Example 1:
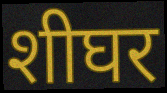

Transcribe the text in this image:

शीघर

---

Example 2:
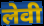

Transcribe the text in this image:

लेवी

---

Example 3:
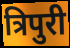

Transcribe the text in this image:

त्रिपुरी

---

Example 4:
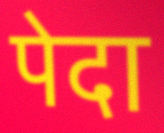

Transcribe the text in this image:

पेदा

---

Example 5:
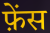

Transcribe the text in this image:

फ़ेंस